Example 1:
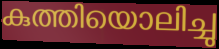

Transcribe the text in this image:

കുത്തിയൊലിച്ചു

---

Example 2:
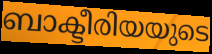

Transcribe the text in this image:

ബാക്ടീരിയയുടെ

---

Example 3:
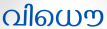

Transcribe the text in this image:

വിധൌ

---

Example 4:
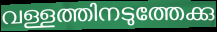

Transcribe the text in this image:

വള്ളത്തിനടുത്തേക്കു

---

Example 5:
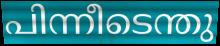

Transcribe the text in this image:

പിന്നീടെന്തു